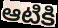
ఆటికి